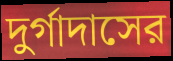
দুর্গাদাসের